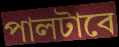
পালটাবে